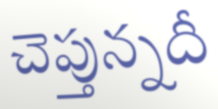
చెప్తున్నదీ